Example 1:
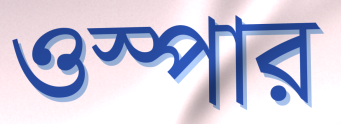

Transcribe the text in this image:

ওস্পার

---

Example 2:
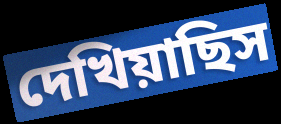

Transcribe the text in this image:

দেখিয়াছিস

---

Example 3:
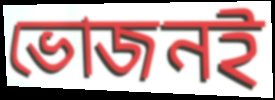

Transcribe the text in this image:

ভোজনই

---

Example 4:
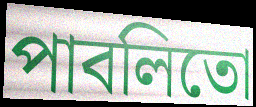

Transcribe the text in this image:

পাবলিতো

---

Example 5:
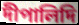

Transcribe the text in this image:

দীপালিদি